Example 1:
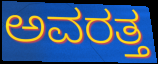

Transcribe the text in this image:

ಅವರತ್ತ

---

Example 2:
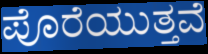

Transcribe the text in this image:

ಪೊರೆಯುತ್ತವೆ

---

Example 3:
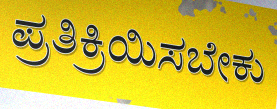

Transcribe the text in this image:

ಪ್ರತಿಕ್ರಿಯಿಸಬೇಕು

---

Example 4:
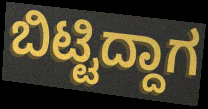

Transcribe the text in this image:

ಬಿಟ್ಟಿದ್ದಾಗ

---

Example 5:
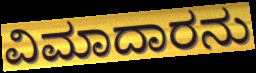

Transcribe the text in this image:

ವಿಮಾದಾರನು